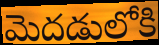
మెదడులోకి